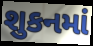
શુકનમાં